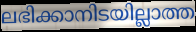
ലഭിക്കാനിടയില്ലാത്ത